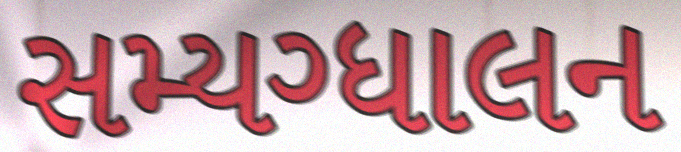
સમ્યગ્ધાલન